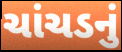
ચાંચડનું